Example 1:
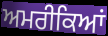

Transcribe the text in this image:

ਅਮਰੀਕਿਆਂ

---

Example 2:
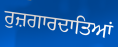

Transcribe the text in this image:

ਰੁਜ਼ਗਾਰਦਾਤਿਆਂ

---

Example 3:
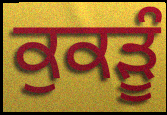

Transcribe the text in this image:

ਕੁਕੜੂੰ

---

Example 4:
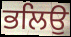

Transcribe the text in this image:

ਭਲਿਉ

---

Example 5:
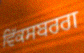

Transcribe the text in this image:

ਵਿੱਕਸਬਰਗ